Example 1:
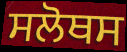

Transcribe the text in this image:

ਸਲੋਥਸ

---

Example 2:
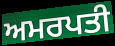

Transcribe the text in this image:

ਅਮਰਪਤੀ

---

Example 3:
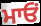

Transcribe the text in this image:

ਮਾਓਂ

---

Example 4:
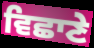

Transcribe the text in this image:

ਵਿਛਾਣੇ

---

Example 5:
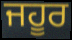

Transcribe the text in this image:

ਜਹੂਰ